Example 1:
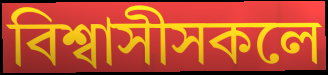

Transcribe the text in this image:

বিশ্বাসীসকলে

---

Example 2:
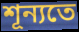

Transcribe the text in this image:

শূন্যতে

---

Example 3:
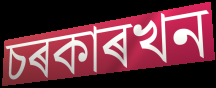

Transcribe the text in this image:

চৰকাৰখন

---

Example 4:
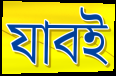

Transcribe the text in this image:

যাবই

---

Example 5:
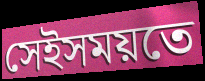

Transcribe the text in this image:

সেইসময়তে